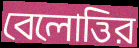
বেলোত্তির